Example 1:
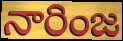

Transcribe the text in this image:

నారింజ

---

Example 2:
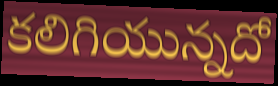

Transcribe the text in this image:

కలిగియున్నదో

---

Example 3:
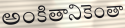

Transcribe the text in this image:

అంకితానికెంతా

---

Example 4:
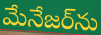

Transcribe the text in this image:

మేనేజర్‌ను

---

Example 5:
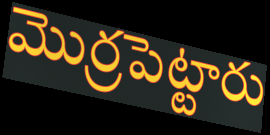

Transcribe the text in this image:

మొర్రపెట్టారు